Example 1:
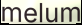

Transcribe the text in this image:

melum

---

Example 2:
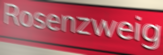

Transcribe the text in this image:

Rosenzweig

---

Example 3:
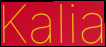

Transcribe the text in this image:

Kalia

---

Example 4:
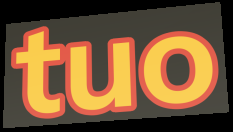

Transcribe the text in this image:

tuo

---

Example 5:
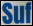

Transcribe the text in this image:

Suf